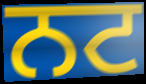
ਨਟ